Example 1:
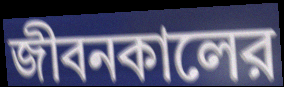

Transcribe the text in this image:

জীবনকালের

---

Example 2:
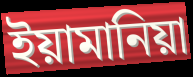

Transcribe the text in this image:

ইয়ামানিয়া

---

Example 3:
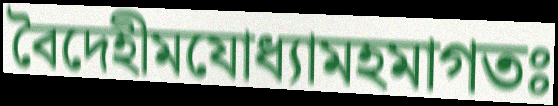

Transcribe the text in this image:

বৈদেহীমযোধ্যামহমাগতঃ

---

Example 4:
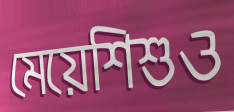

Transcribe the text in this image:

মেয়েশিশুও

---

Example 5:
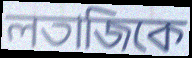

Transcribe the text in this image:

লতাজিকে